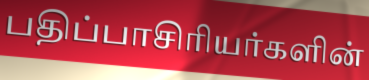
பதிப்பாசிரியர்களின்